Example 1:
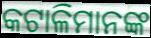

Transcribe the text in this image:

କଟାଳିମାନଙ୍କ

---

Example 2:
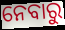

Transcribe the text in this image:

ନେବାରୁ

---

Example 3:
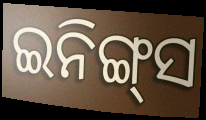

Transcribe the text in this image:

ଇନିଙ୍ଗ୍‌ସ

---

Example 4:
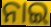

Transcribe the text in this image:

ନାଇ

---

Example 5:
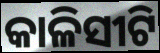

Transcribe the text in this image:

କାଳିସୀଟି